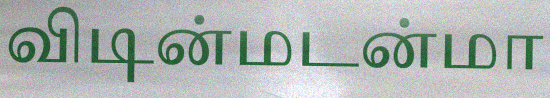
விடின்மடன்மா